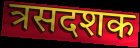
त्रसदशक